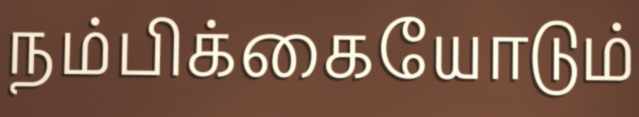
நம்பிக்கையோடும்